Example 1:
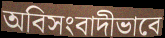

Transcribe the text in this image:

অবিসংবাদীভাবে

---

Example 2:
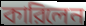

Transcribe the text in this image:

কারিলেন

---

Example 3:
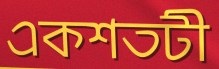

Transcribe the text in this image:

একশতটী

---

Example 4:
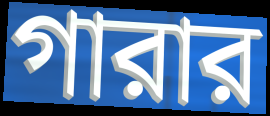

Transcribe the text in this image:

গারার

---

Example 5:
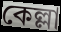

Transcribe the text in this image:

কেল্লা